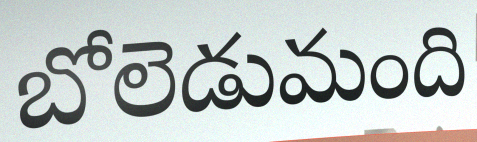
బోలెడుమంది